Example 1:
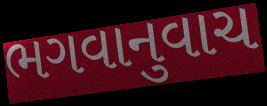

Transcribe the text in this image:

ભગવાનુવાચ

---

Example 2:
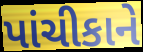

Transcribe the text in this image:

પાંચીકાને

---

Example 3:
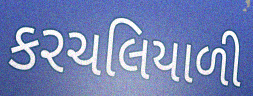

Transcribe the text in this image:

કરચલિયાળી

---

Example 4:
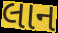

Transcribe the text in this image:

લાન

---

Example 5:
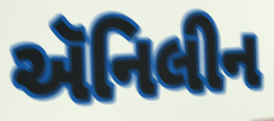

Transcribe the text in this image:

ઍનિલીન